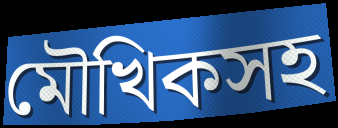
মৌখিকসহ